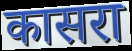
कासरा